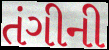
તંગીની